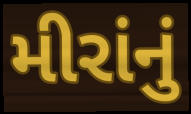
મીરાંનું